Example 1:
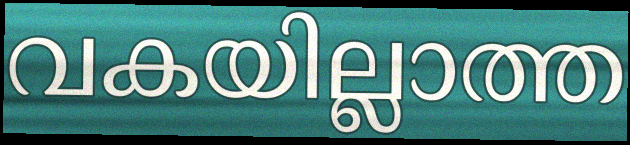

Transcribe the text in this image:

വകയില്ലാത്ത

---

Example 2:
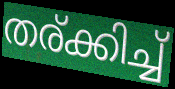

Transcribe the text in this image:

തര്ക്കിച്ച്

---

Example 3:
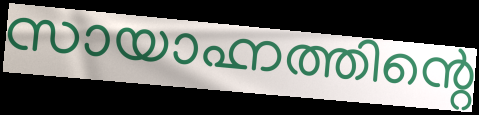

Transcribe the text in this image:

സായാഹ്നത്തിന്റെ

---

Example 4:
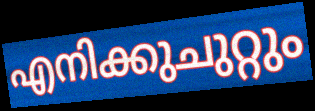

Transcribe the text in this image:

എനിക്കുചുറ്റും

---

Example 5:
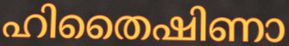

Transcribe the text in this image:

ഹിതൈഷിണാ